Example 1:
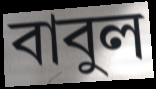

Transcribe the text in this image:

বাবুল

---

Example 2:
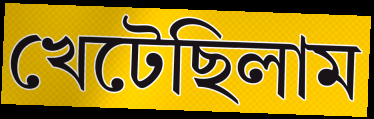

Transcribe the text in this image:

খেটেছিলাম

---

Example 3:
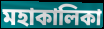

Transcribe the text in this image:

মহাকালিকা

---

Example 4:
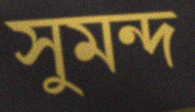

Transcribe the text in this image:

সুমন্দ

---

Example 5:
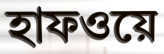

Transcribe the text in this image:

হাফওয়ে